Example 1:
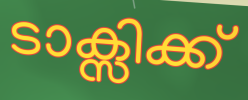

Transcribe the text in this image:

ടാക്സിക്ക്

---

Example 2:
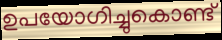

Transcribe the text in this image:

ഉപയോഗിച്ചുകൊണ്ട്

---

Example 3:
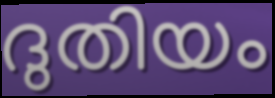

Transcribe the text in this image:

ദുതിയം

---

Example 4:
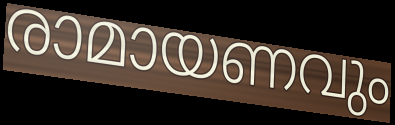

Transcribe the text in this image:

രാമായണവും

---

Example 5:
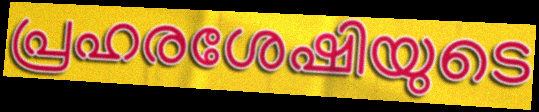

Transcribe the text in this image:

പ്രഹരശേഷിയുടെ